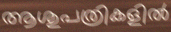
ആശുപത്രികളിൽ